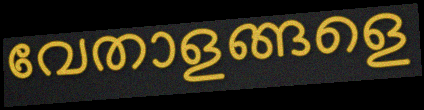
വേതാളങ്ങളെ